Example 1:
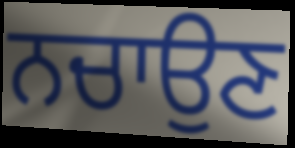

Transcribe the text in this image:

ਨਚਾਉਣ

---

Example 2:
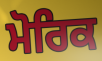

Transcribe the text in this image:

ਮੋਰਿਕ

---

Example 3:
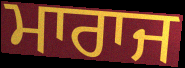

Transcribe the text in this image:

ਮਾਰਾਜ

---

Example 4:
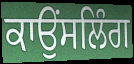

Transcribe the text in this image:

ਕਾਉੰਸਲਿੰਗ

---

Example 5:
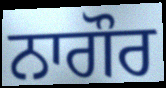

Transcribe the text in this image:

ਨਾਗੌਰ